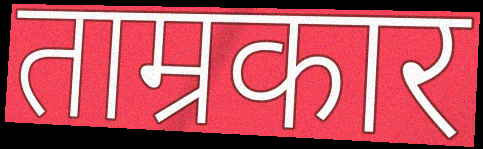
ताम्रकार